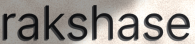
rakshase